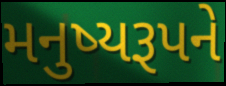
મનુષ્યરૂપને